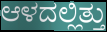
ಆಳದಲ್ಲಿತ್ತು